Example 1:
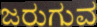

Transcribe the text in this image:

ಜರುಗುವ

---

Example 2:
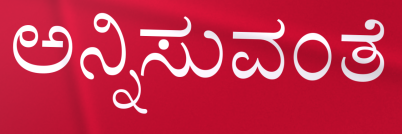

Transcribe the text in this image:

ಅನ್ನಿಸುವಂತೆ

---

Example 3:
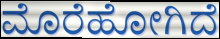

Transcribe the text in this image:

ಮೊರೆಹೋಗಿದೆ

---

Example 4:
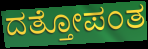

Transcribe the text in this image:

ದತ್ತೋಪಂತ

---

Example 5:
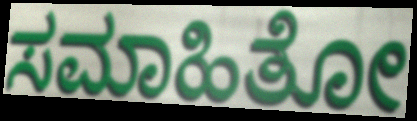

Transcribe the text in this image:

ಸಮಾಹಿತೋ